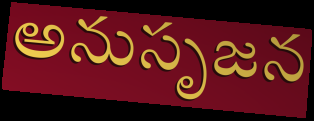
అనుసృజన